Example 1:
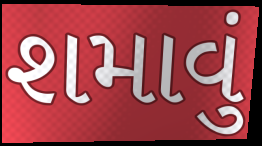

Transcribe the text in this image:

શમાવું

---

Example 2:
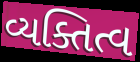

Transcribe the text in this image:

વ્યક્તિત્વ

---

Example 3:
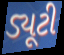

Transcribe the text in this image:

ડ્યૂટી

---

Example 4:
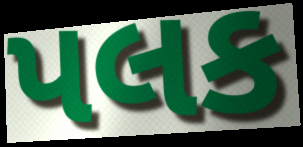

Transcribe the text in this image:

પલક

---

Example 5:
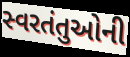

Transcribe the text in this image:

સ્વરતંતુઓની